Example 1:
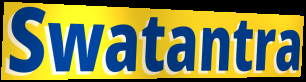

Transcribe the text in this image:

Swatantra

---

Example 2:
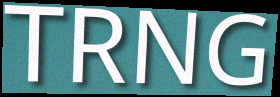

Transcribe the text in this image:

TRNG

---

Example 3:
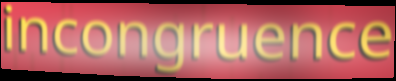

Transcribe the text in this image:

incongruence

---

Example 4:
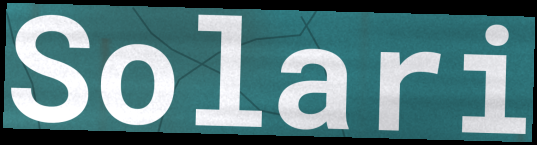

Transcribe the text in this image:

Solari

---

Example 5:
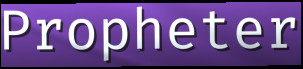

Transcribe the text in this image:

Propheter